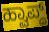
ಹ್ವಾಪ್ದ್